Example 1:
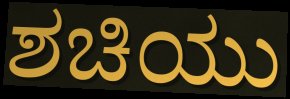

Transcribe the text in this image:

ಶಚಿಯು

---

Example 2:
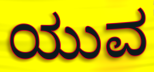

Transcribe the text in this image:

ಯುವ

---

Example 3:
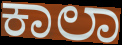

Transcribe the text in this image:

ಕಾಲಾ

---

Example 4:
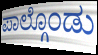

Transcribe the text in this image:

ಪಾಲ್ಗೊಂಡು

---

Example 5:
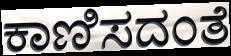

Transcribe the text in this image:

ಕಾಣಿಸದಂತೆ